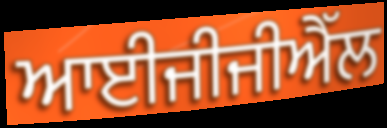
ਆਈਜੀਜੀਐੱਲ